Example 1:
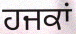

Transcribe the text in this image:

ਹਜਕਾਂ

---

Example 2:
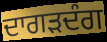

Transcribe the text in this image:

ਦਾਗੜਦੰਗ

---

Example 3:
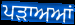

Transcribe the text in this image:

ਪੜਾਅਆਂ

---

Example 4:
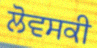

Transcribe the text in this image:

ਲੋਵਸਕੀ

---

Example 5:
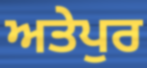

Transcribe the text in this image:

ਅਤੇਪੁਰ